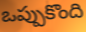
ఒప్పుకొంది